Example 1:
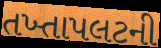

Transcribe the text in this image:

તખ્તાપલટની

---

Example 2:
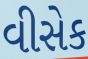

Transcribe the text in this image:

વીસેક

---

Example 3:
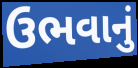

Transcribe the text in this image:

ઉભવાનું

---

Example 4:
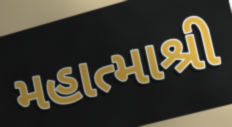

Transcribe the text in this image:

મહાત્માશ્રી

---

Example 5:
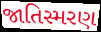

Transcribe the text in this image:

જાતિસ્મરણ